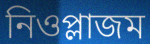
নিওপ্লাজম